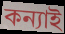
কন্যাই